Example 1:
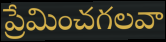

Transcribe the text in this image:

ప్రేమించగలవా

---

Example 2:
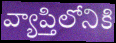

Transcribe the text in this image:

వ్యాప్తిలోనికి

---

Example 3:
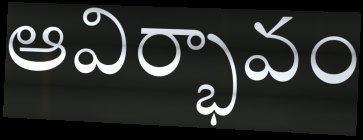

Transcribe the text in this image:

ఆవిర్భావం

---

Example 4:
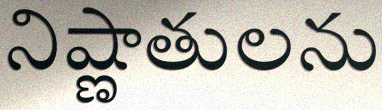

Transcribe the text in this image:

నిష్ణాతులను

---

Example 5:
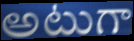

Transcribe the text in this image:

అటుగా